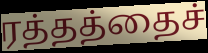
ரத்தத்தைச்